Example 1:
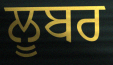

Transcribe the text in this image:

ਲੂਬਰ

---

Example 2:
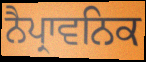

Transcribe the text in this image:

ਨੈਪ੍ਰਾਵਨਿਕ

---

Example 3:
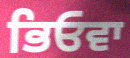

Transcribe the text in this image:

ਭਿਓਵਾ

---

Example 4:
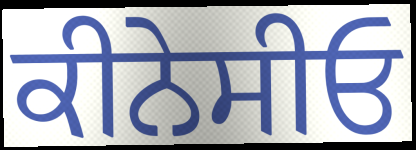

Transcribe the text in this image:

ਕੀਨੇਸੀਓ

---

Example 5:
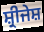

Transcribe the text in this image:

ਸ਼੍ਰੀਜੇਸ਼